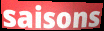
saisons